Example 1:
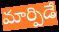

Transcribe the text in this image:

మార్పిడే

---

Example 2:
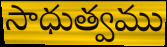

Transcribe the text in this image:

సాధుత్వము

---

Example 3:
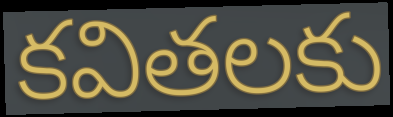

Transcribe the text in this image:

కవితలకు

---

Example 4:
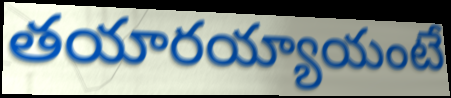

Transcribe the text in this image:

తయారయ్యాయంటే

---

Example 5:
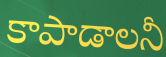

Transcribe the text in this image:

కాపాడాలనీ